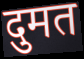
दुमत